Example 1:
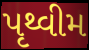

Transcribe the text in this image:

પૃથ્વીમ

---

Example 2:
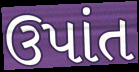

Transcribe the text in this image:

ઉપાંત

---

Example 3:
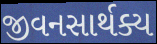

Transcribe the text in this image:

જીવનસાર્થક્ય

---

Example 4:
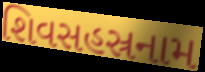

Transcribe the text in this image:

શિવસહસ્રનામ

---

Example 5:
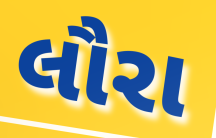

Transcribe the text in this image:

લૌરા